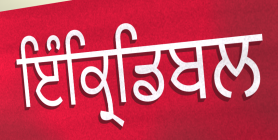
ਇੰਕ੍ਰਿਡਿਬਲ